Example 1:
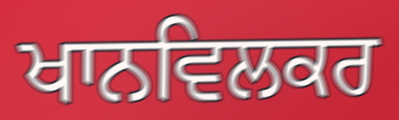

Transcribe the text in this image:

ਖਾਨਵਿਲਕਰ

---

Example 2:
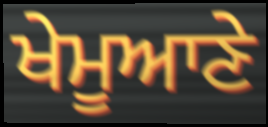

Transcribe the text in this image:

ਖੇਮੂਆਣੇ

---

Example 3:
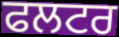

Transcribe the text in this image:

ਫਲਟਰ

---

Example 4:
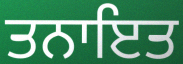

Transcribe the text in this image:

ਤਨਾਇਤ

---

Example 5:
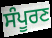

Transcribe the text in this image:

ਸੰਪੂਰਣ